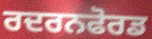
ਰਦਰਨਫੋਰਡ